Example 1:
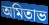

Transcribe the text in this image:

অমিতাভ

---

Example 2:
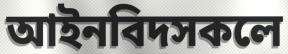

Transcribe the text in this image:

আইনবিদসকলে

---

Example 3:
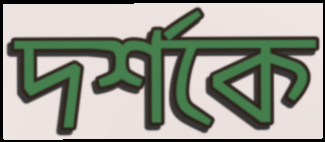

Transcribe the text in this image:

দৰ্শকে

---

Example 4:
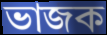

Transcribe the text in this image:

ভাজক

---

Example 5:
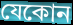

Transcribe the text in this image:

যেকোন